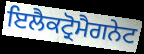
ਇਲੈਕਟ੍ਰੋਮੈਗਨੇਟ